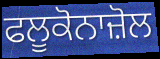
ਫਲੂਕੋਨਾਜ਼ੋਲ